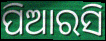
ପିଆରସି